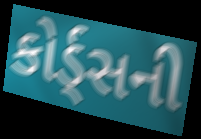
કોર્ડ્સની